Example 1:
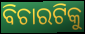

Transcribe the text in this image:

ବିଚାରଟିକୁ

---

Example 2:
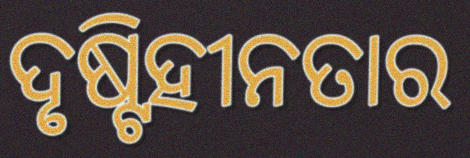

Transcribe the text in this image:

ଦୃଷ୍ଟିହୀନତାର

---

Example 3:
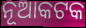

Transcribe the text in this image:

ନୂଆକଟକ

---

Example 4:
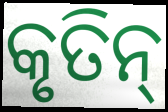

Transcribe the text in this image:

କୃତିନ୍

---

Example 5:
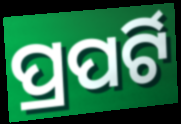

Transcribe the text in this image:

ପ୍ରପର୍ଟି